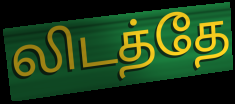
லிடத்தே